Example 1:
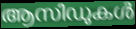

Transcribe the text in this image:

ആസിഡുകൾ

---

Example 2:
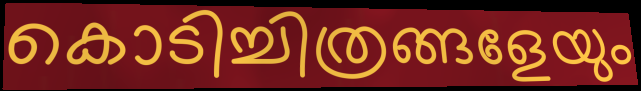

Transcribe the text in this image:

കൊടിച്ചിത്രങ്ങളേയും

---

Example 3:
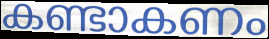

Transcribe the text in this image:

കണ്ടാകണം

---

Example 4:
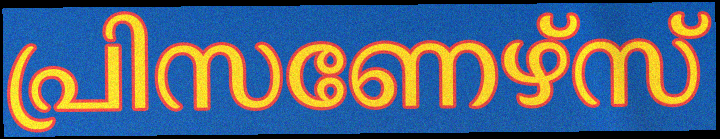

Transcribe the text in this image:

പ്രിസണേഴ്സ്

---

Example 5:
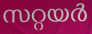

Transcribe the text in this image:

സറ്റയർ